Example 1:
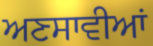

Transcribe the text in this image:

ਅਣਸਾਵੀਆਂ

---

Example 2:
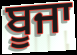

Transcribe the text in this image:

ਬੂਜਾ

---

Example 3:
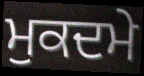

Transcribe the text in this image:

ਮੁਕਦਮੇ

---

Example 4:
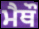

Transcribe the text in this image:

ਮੈਥੌ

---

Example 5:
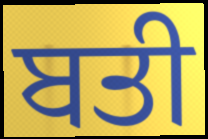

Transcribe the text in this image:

ਬਤੀ